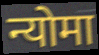
न्योमा